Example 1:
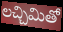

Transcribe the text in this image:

లచ్చిమితో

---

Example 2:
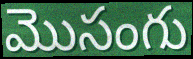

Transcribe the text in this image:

మొసంగు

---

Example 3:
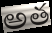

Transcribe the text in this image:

అత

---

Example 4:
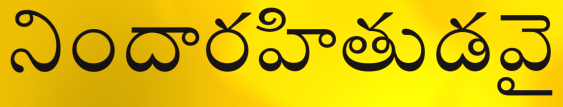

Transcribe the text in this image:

నిందారహితుడవై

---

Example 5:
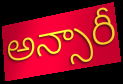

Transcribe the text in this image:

అన్సారీ